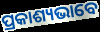
ପ୍ରକାଶ୍ୟଭାବେ